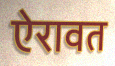
ऐरावत